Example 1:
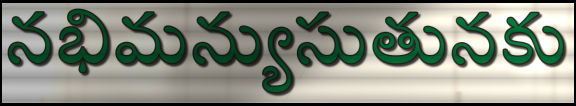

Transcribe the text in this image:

నభిమన్యుసుతునకు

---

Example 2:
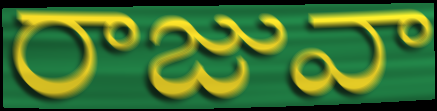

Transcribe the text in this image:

రాజువా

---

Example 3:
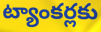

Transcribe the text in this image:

ట్యాంకర్లకు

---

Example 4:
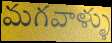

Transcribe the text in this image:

మగవాళ్ళు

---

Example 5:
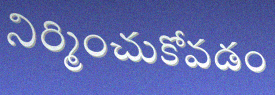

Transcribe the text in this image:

నిర్మించుకోవడం